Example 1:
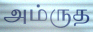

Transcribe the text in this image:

அம்ருத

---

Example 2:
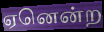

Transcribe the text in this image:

ஏனென்ற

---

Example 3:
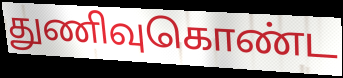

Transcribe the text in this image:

துணிவுகொண்ட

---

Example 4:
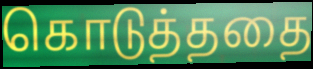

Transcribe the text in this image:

கொடுத்ததை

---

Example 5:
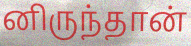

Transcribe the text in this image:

னிருந்தான்